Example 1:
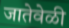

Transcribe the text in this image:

जातेवेळी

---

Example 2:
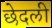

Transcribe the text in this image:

छेदली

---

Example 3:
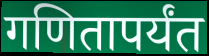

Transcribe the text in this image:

गणितापर्यंत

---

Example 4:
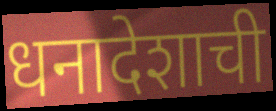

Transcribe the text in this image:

धनादेशाची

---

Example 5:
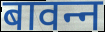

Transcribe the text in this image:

बावन्न